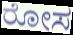
ರೋಸ